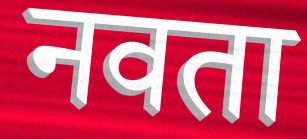
नवता